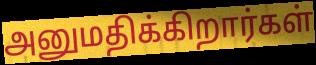
அனுமதிக்கிறார்கள்